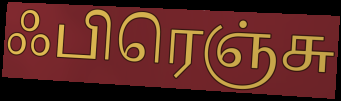
ஃபிரெஞ்சு